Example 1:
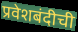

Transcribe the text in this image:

प्रवेशबंदीची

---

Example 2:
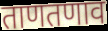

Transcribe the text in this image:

ताणतणाव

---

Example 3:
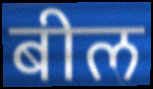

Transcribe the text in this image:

बील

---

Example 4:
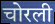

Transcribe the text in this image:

चोरली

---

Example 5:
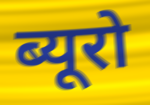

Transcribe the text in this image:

ब्यूरो